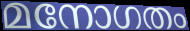
മനോഗതം